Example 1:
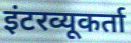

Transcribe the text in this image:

इंटरव्यूकर्ता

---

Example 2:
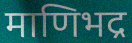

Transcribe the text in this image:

माणिभद्र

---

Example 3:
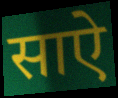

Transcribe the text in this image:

साऐ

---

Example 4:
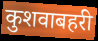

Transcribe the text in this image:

कुशवाबहरी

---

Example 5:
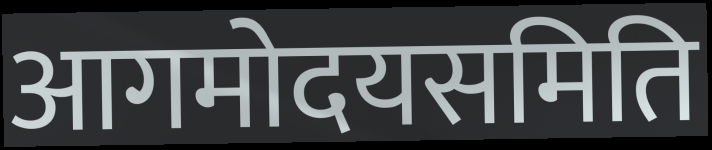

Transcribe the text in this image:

आगमोदयसमिति